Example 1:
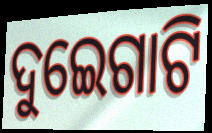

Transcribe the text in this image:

ଦୁଇେଗାଟି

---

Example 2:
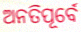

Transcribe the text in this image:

ଅନତିପୂର୍ବେ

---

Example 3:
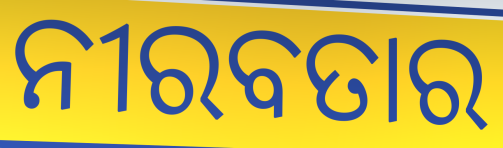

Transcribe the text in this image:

ନୀରବତାର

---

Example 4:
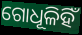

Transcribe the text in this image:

ଗୋଧୂଳିହିଁ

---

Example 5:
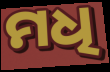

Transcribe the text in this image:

ମଧି